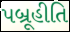
પબ્રૂહીતિ